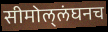
सीमोल्लंघनच